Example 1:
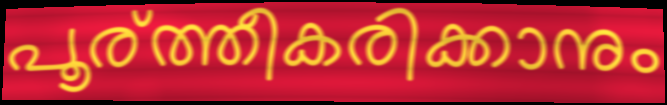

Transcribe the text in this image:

പൂര്ത്തീകരിക്കാനും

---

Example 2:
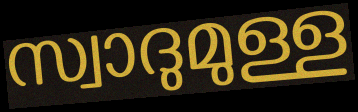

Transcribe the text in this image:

സ്വാദുമുള്ള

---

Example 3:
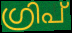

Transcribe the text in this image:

ഗ്രിപ്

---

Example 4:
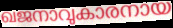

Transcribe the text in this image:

ഖജനാവുകാരനായ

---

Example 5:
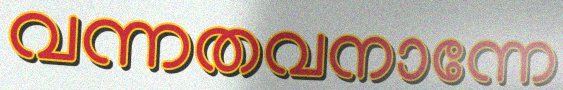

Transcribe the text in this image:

വന്നതവനാന്നേ